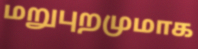
மறுபுறமுமாக